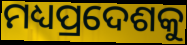
ମଧ୍ୟପ୍ରଦେଶକୁ